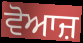
ਵੋਆਜ਼